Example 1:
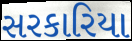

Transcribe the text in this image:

સરકારિયા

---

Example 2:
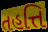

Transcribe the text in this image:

તહત્તિ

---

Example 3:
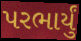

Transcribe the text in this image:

પરભાર્યું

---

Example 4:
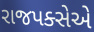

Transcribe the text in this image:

રાજપક્સેએ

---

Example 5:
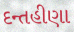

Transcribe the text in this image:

દન્તહીણા